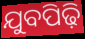
ଯୁବପିଢ଼ି